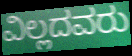
ವಿಲ್ಲದವರು